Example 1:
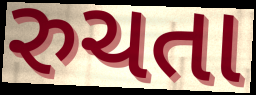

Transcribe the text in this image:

રુચતા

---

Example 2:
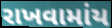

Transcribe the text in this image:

રાખવામાંય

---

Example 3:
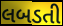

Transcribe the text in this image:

લબડતી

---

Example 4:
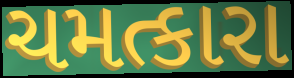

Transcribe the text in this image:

ચમત્કારા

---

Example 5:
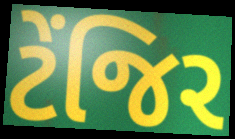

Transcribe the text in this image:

ટેંજિર